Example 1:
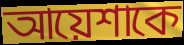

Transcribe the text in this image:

আয়েশাকে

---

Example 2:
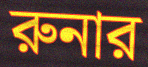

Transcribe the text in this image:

রুনার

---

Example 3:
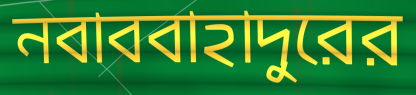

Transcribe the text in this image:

নবাববাহাদুরের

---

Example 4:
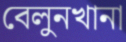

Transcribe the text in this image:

বেলুনখানা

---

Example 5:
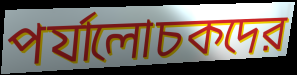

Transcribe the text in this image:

পর্যালোচকদের